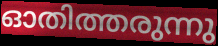
ഓതിത്തരുന്നു